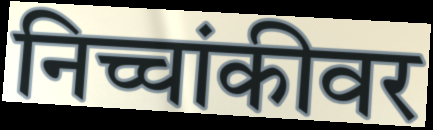
निच्चांकीवर